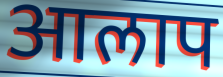
आलाप